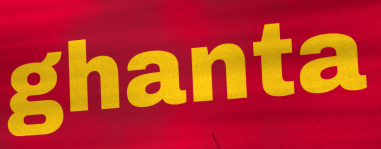
ghanta